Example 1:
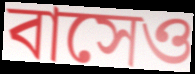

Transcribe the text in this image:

বাসেও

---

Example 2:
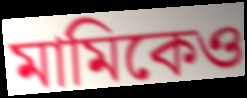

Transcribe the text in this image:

মামিকেও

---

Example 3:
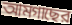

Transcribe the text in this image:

আমগাছের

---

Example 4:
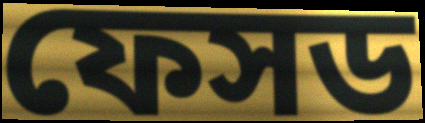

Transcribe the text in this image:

ফেসড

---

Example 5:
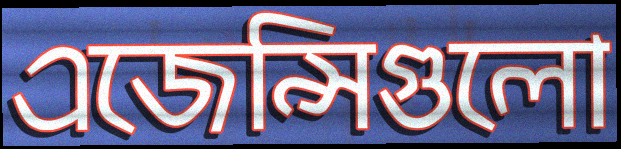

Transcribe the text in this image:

এজেন্সিগুলো